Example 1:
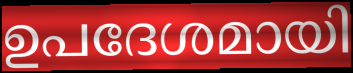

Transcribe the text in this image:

ഉപദേശമായി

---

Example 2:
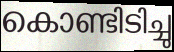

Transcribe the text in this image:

കൊണ്ടിടിച്ചു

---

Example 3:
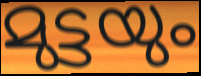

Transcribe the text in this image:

മുട്ടയും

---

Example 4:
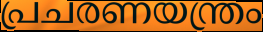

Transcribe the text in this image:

പ്രചരണയന്ത്രം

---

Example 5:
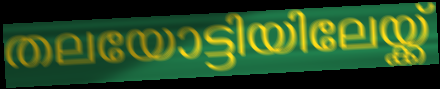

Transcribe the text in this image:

തലയോട്ടിയിലേയ്ക്ക്